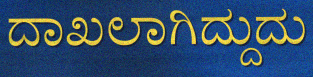
ದಾಖಲಾಗಿದ್ದುದು